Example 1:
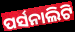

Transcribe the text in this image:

ପର୍ସନାଲିଟି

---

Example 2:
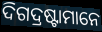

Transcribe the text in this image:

ଦିଗଦ୍ରଷ୍ଟାମାନେ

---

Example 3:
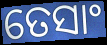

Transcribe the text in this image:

ତେସାଂ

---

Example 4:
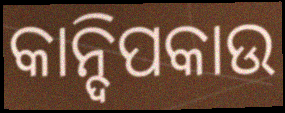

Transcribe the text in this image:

କାନ୍ଦିପକାଉ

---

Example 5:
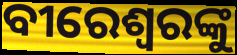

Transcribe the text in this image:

ବୀରେଶ୍ୱରଙ୍କୁ